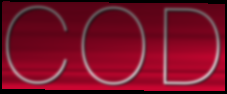
COD